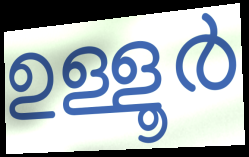
ഉള്ളൂർ